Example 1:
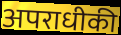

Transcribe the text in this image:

अपराधीकी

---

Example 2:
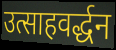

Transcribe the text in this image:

उत्साहवर्द्धन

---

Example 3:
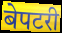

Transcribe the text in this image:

बेपटरी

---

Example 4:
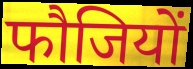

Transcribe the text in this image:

फौजियों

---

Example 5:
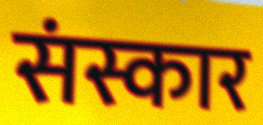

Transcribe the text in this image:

संस्‍कार